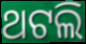
ଥଟଲି